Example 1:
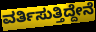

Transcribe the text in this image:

ವರ್ತಿಸುತ್ತಿದ್ದೇನೆ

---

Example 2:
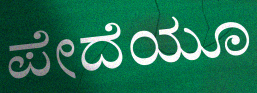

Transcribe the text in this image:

ಪೇದೆಯೂ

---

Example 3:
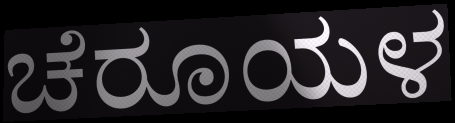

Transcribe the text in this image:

ಚೆರೂಯಳ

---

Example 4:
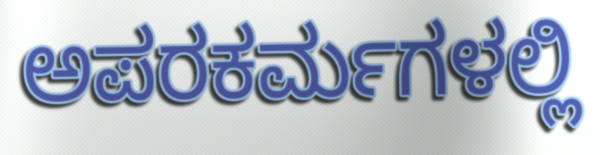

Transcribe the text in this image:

ಅಪರಕರ್ಮಗಳಲ್ಲಿ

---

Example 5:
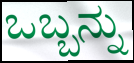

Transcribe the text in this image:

ಒಬ್ಬನ್ನು